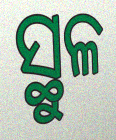
ସ୍ଥୁଳ